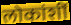
लोकांशीं